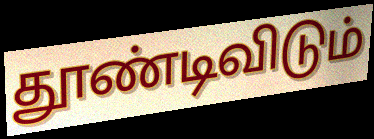
தூண்டிவிடும்